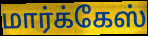
மார்க்கேஸ்